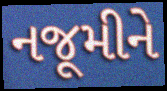
નજૂમીને